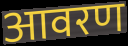
आवरण